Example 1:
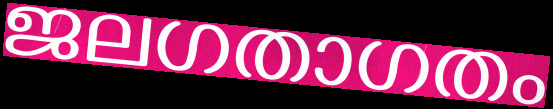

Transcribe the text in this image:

ജലഗതാഗതം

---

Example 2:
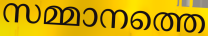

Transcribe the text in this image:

സമ്മാനത്തെ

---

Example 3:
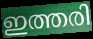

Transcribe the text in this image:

ഇത്തരി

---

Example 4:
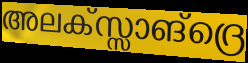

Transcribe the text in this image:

അലക്സ്സാങ്ദ്രെ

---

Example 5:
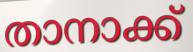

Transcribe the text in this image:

താനാക്ക്